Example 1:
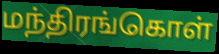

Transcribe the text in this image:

மந்திரங்கொள்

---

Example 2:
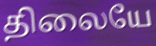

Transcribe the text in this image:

திலையே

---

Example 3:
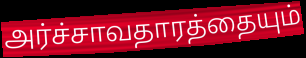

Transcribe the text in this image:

அர்ச்சாவதாரத்தையும்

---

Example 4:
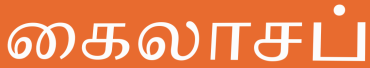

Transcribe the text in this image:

கைலாசப்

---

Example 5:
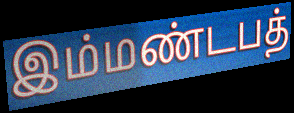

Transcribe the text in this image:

இம்மண்டபத்